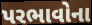
પરભાવોના